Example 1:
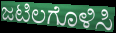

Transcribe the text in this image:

ಜಟಿಲಗೊಳಿಸಿ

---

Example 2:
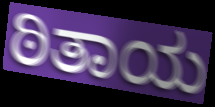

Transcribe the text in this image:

ಠಿತಾಯ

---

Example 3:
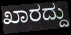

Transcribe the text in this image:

ಖಾರದ್ದು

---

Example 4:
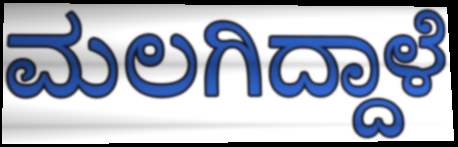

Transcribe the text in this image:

ಮಲಗಿದ್ದಾಳೆ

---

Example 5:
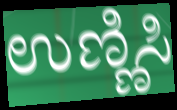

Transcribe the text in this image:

ಉಣ್ಣಿಸಿ